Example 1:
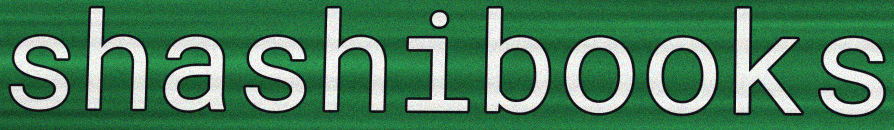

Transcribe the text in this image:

shashibooks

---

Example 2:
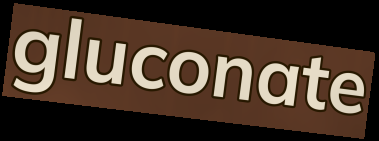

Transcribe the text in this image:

gluconate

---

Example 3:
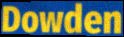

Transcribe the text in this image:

Dowden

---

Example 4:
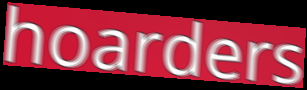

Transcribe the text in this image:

hoarders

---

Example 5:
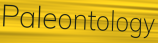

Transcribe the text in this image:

Paleontology